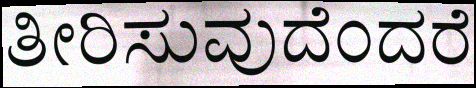
ತೀರಿಸುವುದೆಂದರೆ